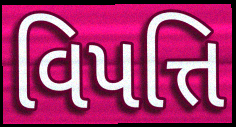
વિપત્તિ